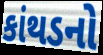
કાંથડનો